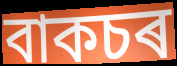
বাকচৰ